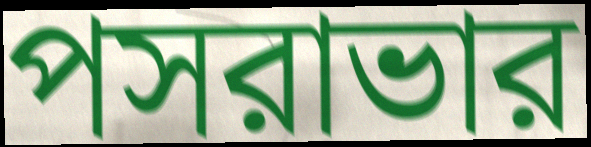
পসরাভার